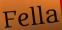
Fella